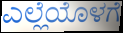
ಎಲ್ಲೆಯೊಳಗೆ